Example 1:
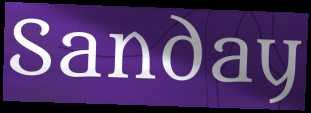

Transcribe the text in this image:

Sanday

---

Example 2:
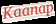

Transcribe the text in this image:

Kaanap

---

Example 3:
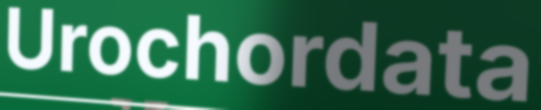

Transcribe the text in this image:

Urochordata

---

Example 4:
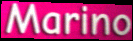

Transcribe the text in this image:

Marino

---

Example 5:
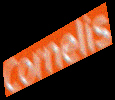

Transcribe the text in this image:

Cornelis